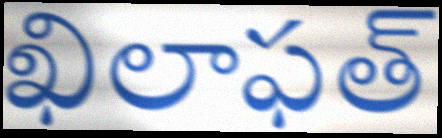
ఖిలాఫత్